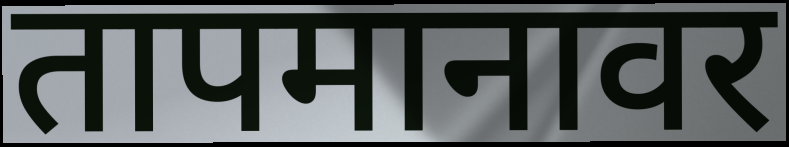
तापमानावर